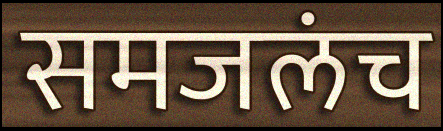
समजलंच